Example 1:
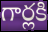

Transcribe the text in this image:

గార్లకి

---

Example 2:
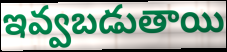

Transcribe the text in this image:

ఇవ్వబడుతాయి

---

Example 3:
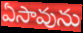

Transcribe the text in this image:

ఏసావును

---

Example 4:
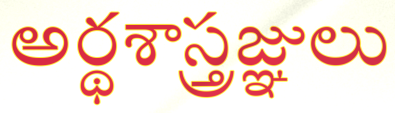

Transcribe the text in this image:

అర్థశాస్త్రజ్ఞులు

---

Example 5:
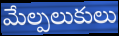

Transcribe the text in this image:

మేల్పలుకులు